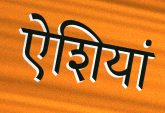
ऐशियां